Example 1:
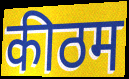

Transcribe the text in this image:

कीठम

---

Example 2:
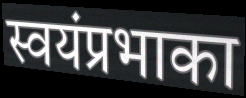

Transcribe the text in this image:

स्वयंप्रभाका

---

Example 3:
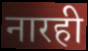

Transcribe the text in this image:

नारही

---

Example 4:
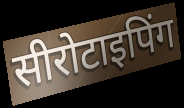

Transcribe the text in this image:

सीरोटाइपिंग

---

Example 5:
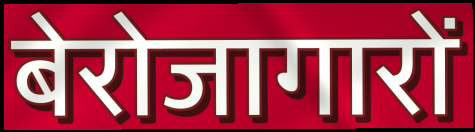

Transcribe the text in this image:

बेरोजागारों